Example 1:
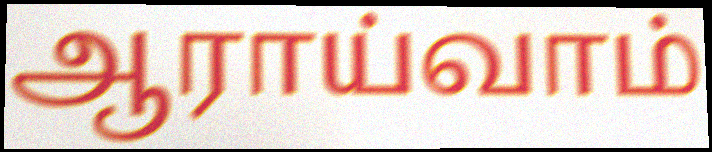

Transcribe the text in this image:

ஆராய்வாம்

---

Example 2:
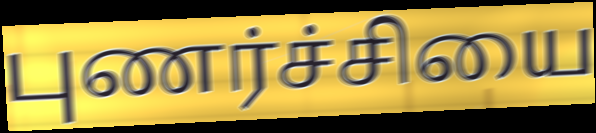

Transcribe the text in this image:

புணர்ச்சியை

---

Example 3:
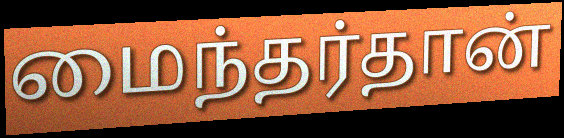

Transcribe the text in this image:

மைந்தர்தான்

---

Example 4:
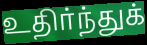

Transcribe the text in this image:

உதிர்ந்துக்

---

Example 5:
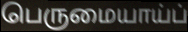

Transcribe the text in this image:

பெருமையாய்ப்